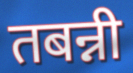
तबन्नी